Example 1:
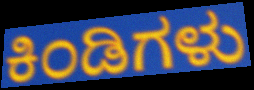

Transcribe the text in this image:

ಕಿಂಡಿಗಳು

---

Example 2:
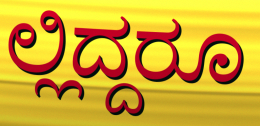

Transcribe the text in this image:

ಲ್ಲಿದ್ದರೂ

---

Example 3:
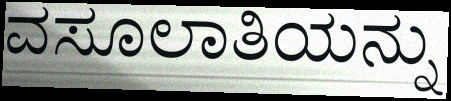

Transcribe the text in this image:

ವಸೂಲಾತಿಯನ್ನು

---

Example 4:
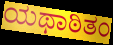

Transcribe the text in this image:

ಯಥಾಠಿತಂ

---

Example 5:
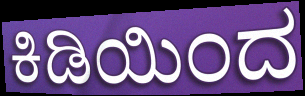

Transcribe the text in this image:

ಕಿಡಿಯಿಂದ